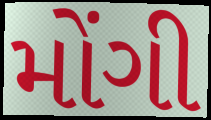
મોંગી